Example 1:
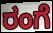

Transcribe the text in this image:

ರಂಗೆ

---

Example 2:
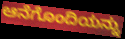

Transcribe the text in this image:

ಆನೆಗೊಂದಿಯನ್ನು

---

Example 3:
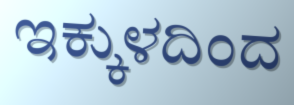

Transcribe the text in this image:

ಇಕ್ಕುಳದಿಂದ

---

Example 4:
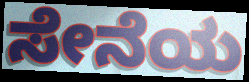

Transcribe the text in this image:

ಸೇನೆಯ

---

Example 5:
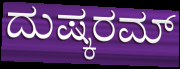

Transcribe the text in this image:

ದುಷ್ಕರಮ್